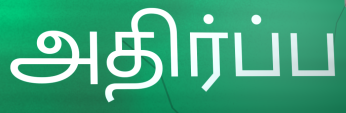
அதிர்ப்ப